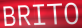
BRITO